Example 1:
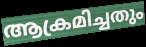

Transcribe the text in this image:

ആക്രമിച്ചതും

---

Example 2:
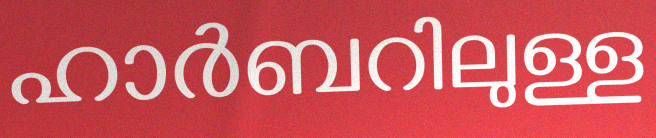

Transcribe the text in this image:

ഹാർബറിലുള്ള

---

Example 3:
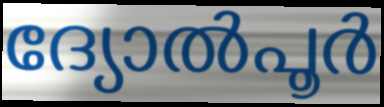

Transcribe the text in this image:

ദ്യോൽപൂർ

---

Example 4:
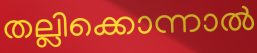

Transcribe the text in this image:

തല്ലിക്കൊന്നാൽ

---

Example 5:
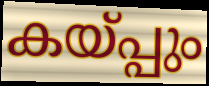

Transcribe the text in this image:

കയ്പ്പും